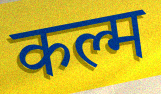
कल्म